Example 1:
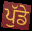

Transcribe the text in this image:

ਪੁੱਡੇ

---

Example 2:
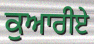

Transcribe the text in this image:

ਕੁਆਰੀਏ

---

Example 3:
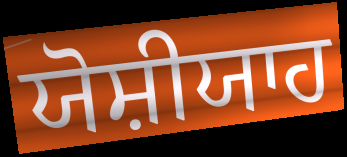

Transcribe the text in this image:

ਯੋਸ਼ੀਯਾਹ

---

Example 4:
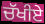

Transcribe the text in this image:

ਚੱਖੀਏ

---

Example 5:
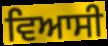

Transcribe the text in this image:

ਵਿਆਸੀ